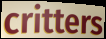
critters